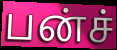
பன்ச்